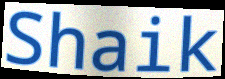
Shaik